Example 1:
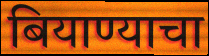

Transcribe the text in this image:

बियाण्याचा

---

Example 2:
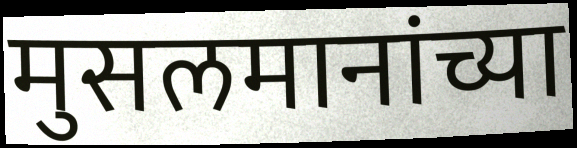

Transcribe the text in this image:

मुसलमानांच्या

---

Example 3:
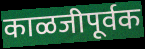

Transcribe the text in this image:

काळजीपूर्वक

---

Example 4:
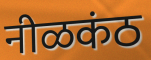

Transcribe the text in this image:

नीळकंठ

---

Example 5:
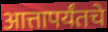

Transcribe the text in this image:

आत्तापर्यंतचे